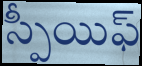
స్పీయిఫ్